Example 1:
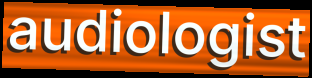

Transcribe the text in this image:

audiologist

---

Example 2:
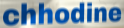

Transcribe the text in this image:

chhodine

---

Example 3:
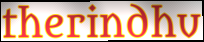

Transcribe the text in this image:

therindhu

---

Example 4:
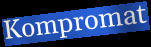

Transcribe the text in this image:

Kompromat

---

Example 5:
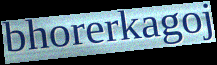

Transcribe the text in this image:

bhorerkagoj